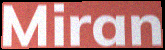
Miran